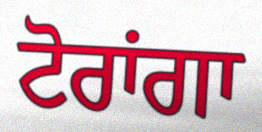
ਟੋਰਾਂਗਾ